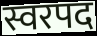
स्वरपद